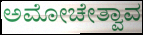
ಅಮೋಚೇತ್ವಾವ